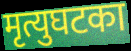
मृत्युघटका